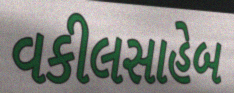
વકીલસાહેબ